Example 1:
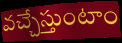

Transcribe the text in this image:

వచ్చేస్తుంటాం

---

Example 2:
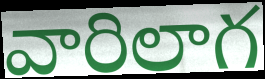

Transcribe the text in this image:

వారిలాగ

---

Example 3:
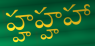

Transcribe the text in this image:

హ్హహ్హహా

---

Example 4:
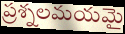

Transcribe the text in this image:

ప్రశ్నలమయమై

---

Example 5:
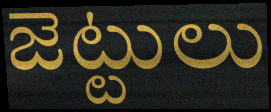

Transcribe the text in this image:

జెట్టులు